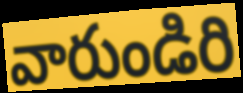
వారుండిరి